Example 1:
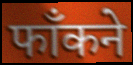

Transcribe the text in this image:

फाँकने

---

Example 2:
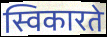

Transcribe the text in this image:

स्विकारते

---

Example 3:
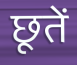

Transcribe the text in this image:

छूतें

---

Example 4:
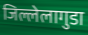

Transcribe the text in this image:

जिल्लेलागुडा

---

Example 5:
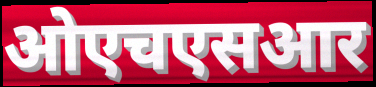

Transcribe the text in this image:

ओएचएसआर